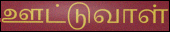
ஊட்டுவாள்